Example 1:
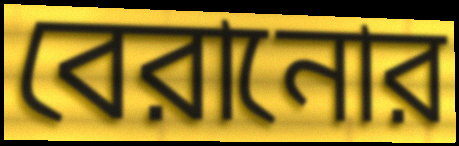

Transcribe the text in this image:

বেরানোর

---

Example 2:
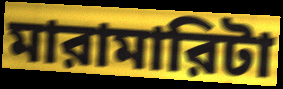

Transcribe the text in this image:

মারামারিটা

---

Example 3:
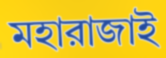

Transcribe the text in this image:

মহারাজাই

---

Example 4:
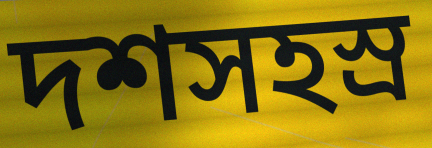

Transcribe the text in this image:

দশসহস্র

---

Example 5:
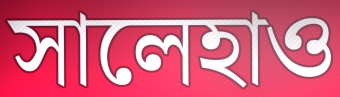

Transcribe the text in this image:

সালেহাও